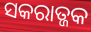
ସକରାତ୍ଜକ